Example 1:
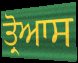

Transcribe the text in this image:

ਤ੍ਰੋਆਸ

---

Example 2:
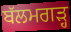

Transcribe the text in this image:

ਬੱਲਮਗੜ੍ਹ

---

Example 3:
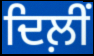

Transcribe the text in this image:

ਦਿਲ਼ੀਂ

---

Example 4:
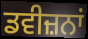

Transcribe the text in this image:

ਡਵੀਜ਼ਨਾਂ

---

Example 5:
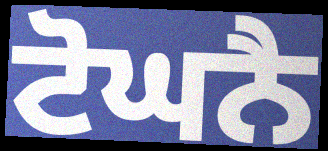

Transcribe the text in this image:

ਟੋਘਨੈ